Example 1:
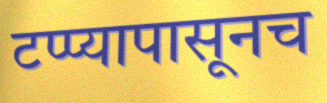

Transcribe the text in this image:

टप्प्यापासूनच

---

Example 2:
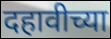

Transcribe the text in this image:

दहावीच्या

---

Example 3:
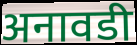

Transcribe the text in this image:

अनावडी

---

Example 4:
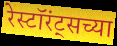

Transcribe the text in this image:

रेस्टॉरंट्सच्या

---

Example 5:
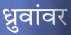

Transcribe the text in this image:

ध्रुवांवर